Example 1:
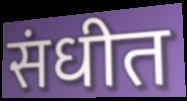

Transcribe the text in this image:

संधीत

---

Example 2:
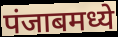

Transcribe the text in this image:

पंजाबमध्ये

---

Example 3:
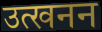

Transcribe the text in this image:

उत्खनन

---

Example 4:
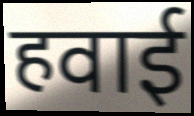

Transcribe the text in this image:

हवाई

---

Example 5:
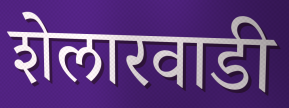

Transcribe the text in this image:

शेलारवाडी